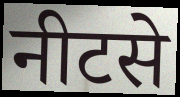
नीटसे